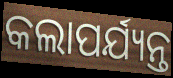
କଲାପର୍ଯ୍ୟନ୍ତ